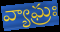
వ్యాఘ్రః